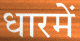
धारमें